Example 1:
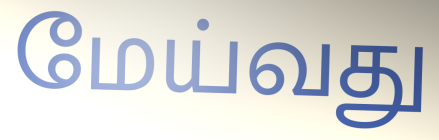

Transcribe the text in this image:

மேய்வது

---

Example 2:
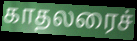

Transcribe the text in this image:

காதலரைச்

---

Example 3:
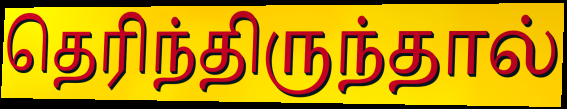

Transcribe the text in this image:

தெரிந்திருந்தால்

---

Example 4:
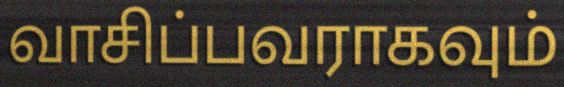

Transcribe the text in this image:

வாசிப்பவராகவும்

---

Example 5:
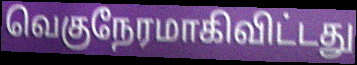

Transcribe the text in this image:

வெகுநேரமாகிவிட்டது